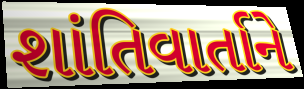
શાંતિવાર્તાને